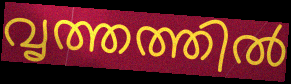
വൃത്തത്തിൽ